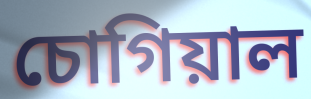
চোগিয়াল